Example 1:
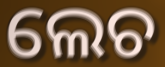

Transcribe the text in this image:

ଲେଚ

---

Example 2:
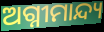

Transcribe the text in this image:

ଅଗ୍ନୀମାନ୍ଦ୍ୟ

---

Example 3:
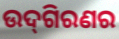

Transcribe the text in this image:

ଉଦ୍‌ଗିରଣର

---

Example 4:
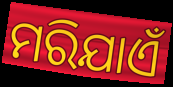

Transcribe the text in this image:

ମରିଯାଏଁ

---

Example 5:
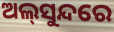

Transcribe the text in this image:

ଅଲ୍‌ସୁନ୍ଦରେ